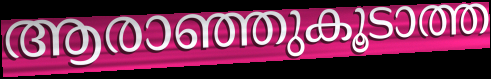
ആരാഞ്ഞുകൂടാത്ത